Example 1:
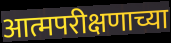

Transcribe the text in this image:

आत्मपरीक्षणाच्या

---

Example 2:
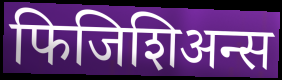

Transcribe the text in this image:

फिजिशिअन्स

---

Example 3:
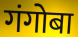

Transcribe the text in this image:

गंगोबा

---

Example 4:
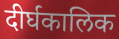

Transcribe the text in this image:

दीर्घकालिक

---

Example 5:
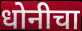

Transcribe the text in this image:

धोनीचा